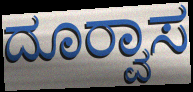
ದೂರ‍್ವಾಸ